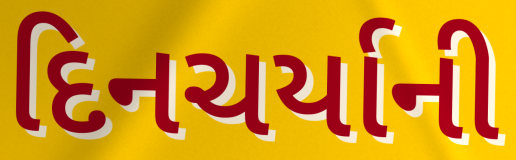
દિનચર્યાની